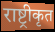
राष्ट्रीकृत